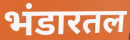
भंडारतल